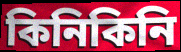
কিনিকিনি